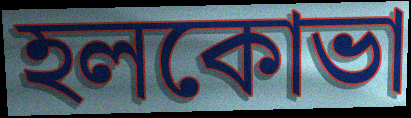
হলকোভা